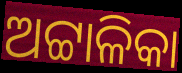
ଅଟ୍ଟାଳିକା